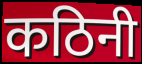
कठिनी